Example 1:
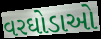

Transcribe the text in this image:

વરઘોડાઓ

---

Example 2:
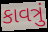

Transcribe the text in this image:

કાવત્રું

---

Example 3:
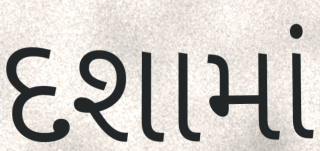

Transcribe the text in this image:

દશામાં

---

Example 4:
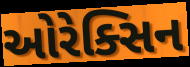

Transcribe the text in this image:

ઓરેક્સિન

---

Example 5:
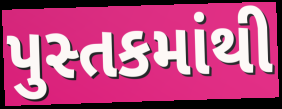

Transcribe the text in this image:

પુસ્તકમાંથી